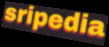
sripedia